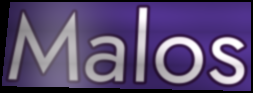
Malos